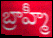
బ్రాహ్మీ